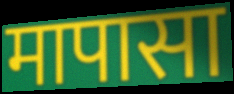
मापासा